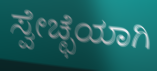
ಸ್ವೇಚ್ಛೆಯಾಗಿ